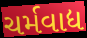
ચર્મવાદ્ય